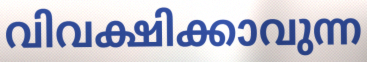
വിവക്ഷിക്കാവുന്ന